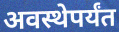
अवस्थेपर्यंत